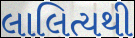
લાલિત્યથી